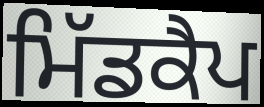
ਮਿੱਡਕੈਪ